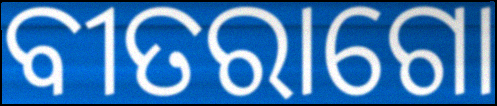
ବୀତରାଗୋ